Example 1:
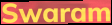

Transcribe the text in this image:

Swaram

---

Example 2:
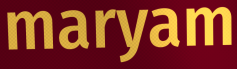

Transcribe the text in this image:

maryam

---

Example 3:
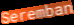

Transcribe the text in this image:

Seremban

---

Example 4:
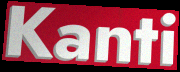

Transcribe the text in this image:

Kanti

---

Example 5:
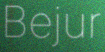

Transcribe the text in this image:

Bejur